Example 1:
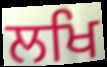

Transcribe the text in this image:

ਲਖਿ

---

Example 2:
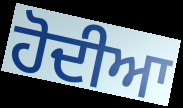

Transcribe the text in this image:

ਹੋਦੀਆ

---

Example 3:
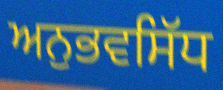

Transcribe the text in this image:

ਅਨੁਭਵਸਿੱਧ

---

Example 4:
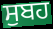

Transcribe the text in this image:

ਸੁਬਹ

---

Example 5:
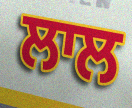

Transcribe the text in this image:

ਲਾਲ